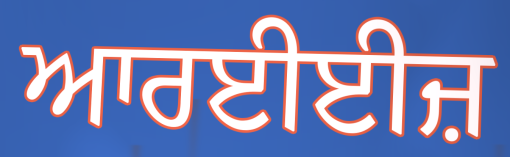
ਆਰਈਈਜ਼